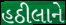
હઠીલાને